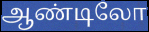
ஆண்டிலோ